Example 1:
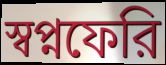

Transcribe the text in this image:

স্বপ্নফেরি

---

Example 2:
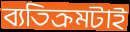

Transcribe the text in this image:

ব্যতিক্রমটাই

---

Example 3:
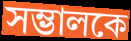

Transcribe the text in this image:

সম্ভালকে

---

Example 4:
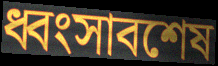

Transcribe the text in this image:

ধ্বংসাবশেষ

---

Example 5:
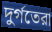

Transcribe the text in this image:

দুর্গতেরা